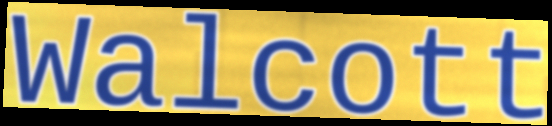
Walcott